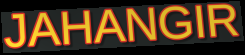
JAHANGIR